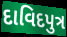
દાવિદપુત્ર